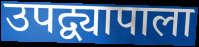
उपद्व्यापाला